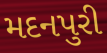
મદનપુરી